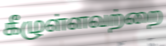
கீழுள்ளவற்றை